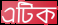
এটিক